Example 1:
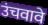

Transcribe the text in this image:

उंचवावे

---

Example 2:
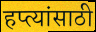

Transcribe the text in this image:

हप्त्यांसाठी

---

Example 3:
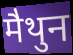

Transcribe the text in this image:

मैथुन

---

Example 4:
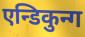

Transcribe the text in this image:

एन्डिकुन्ग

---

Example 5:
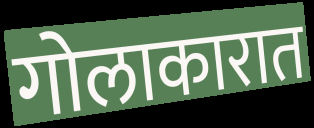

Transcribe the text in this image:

गोलाकारात